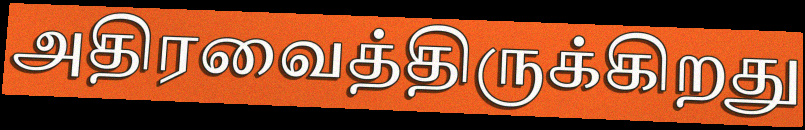
அதிரவைத்திருக்கிறது